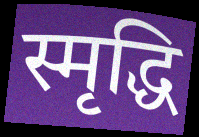
स्मृद्धि